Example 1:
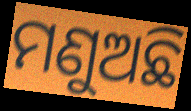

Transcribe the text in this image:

ମଣୁଅଛି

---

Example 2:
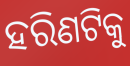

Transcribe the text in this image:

ହରିଣଟିକୁ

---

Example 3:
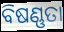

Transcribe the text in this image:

ବିଷଣ୍ଣତା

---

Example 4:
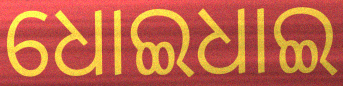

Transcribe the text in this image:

ଧୋଇଧାଇ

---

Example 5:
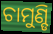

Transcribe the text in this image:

ଚାମୁଣ୍ଡି